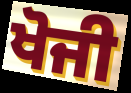
ਖੋਜੀ